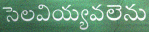
సెలవియ్యవలెను